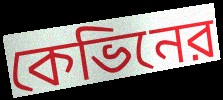
কেভিনের